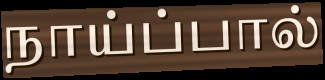
நாய்ப்பால்